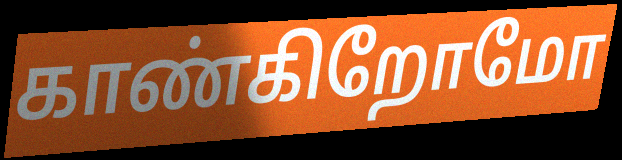
காண்கிறோமோ